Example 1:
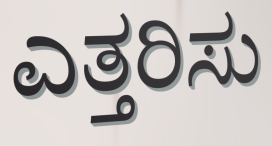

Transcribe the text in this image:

ಎತ್ತರಿಸು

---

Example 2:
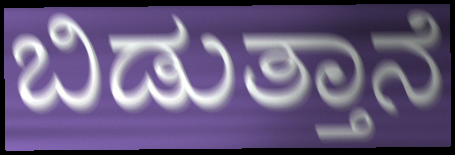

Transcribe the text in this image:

ಬಿಡುತ್ತಾನೆ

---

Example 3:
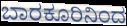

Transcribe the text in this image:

ಬಾರಕೂರಿನಿಂದ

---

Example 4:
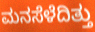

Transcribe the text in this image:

ಮನಸೆಳೆದಿತ್ತು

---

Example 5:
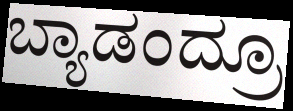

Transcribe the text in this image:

ಬ್ಯಾಡಂದ್ರೂ